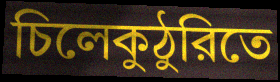
চিলেকুঠুরিতে